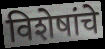
विशेषांचे